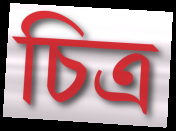
চিত্র